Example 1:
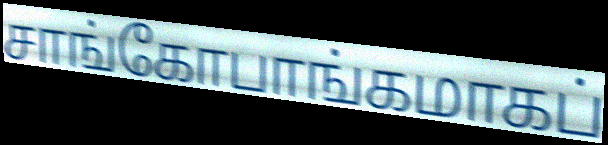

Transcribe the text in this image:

சாங்கோபாங்கமாகப்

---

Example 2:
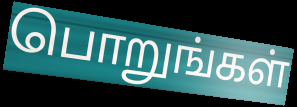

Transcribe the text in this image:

பொறுங்கள்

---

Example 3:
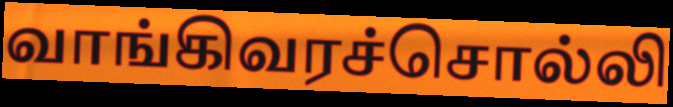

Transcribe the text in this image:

வாங்கிவரச்சொல்லி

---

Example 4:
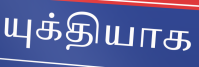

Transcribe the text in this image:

யுக்தியாக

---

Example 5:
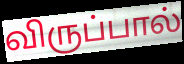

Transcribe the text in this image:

விருப்பால்